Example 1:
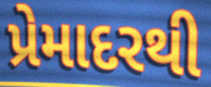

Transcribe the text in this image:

પ્રેમાદરથી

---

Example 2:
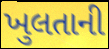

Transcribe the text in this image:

ખુલતાની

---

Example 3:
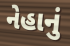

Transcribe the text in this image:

નેહાનું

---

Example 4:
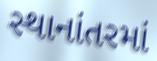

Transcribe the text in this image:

સ્થાનાંતરમાં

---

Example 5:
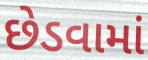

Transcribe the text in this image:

છેડવામાં